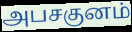
அபசகுனம்